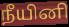
நீயினி